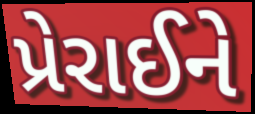
પ્રેરાઈને